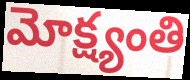
మోక్ష్యంతి